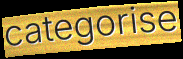
categorise